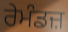
ਰੇਮੰਡਜ਼